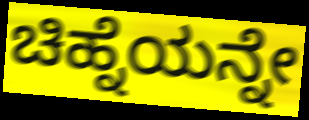
ಚಿಹ್ನೆಯನ್ನೇ